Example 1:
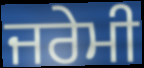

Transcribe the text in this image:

ਜਰੇਮੀ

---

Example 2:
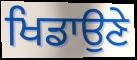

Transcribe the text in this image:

ਖਿਡਾਉਣੇ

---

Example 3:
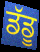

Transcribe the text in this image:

ਡੱਡੂ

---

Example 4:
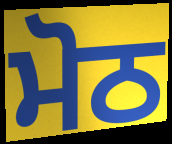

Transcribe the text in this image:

ਮੋਠ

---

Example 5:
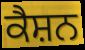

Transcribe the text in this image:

ਕੈਸ਼ਨ